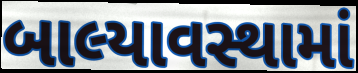
બાલ્યાવસ્થામાં